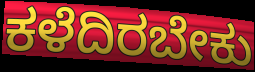
ಕಳೆದಿರಬೇಕು